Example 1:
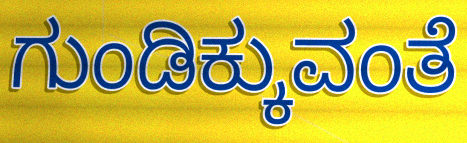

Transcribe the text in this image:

ಗುಂಡಿಕ್ಕುವಂತೆ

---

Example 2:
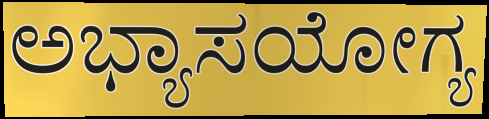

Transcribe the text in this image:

ಅಭ್ಯಾಸಯೋಗ್ಯ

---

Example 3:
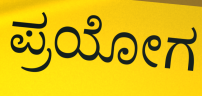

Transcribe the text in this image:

ಪ್ರಯೋಗ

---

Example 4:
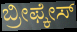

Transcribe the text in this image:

ಬ್ರೀಫ್ಕೇಸ್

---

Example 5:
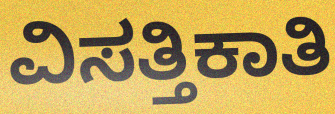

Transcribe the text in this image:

ವಿಸತ್ತಿಕಾತಿ